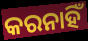
କରନାହିଁ